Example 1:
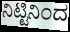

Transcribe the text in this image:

ನಿಟ್ಟಿನಿಂದ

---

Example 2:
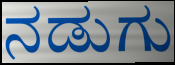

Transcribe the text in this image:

ನಡುಗು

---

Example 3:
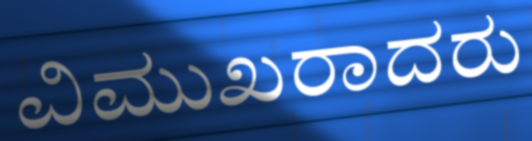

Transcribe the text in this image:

ವಿಮುಖರಾದರು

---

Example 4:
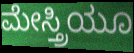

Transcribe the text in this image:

ಮೇಸ್ತ್ರಿಯೂ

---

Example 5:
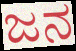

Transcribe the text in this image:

ಜನ